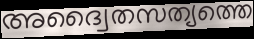
അദ്വൈതസത്യത്തെ